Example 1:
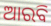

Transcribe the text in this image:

ଆରବି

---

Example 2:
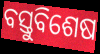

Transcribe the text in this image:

ବସ୍ତୁବିଶେଷ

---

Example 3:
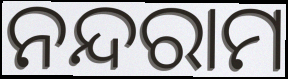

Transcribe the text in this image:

ନନ୍ଦରାମ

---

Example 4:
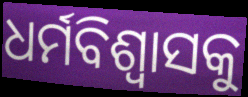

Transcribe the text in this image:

ଧର୍ମବିଶ୍ଵାସକୁ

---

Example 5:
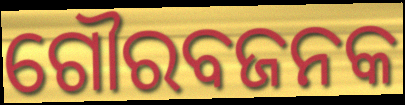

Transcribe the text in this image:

ଗୌରବଜନକ